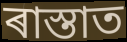
ৰাস্তাত